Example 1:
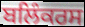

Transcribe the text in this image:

ਬਲਿੰਕਰਸ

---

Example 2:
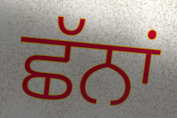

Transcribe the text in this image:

ਛੱਨਾਂ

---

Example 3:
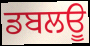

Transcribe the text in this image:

ਡਬਲਊ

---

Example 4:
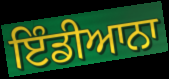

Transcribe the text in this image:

ਇੰਡੀਆਨਾ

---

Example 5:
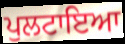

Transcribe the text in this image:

ਪੁਲਟਾਇਆ